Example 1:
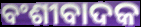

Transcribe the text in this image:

ବଂଶୀବାଦକ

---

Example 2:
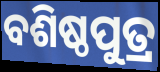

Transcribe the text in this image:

ବଶିଷ୍ଠପୁତ୍ର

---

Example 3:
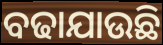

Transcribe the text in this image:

ବଢାଯାଉଛି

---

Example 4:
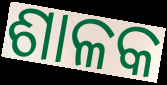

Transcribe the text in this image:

ଶାଳକ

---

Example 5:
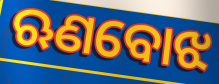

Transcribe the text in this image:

ଋଣବୋଝ